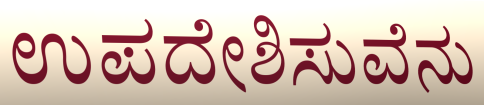
ಉಪದೇಶಿಸುವೆನು